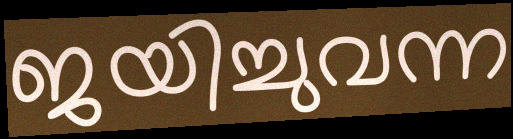
ജയിച്ചുവന്ന